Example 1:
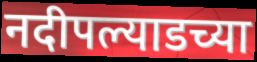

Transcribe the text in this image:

नदीपल्याडच्या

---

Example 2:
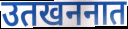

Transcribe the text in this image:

उतखननात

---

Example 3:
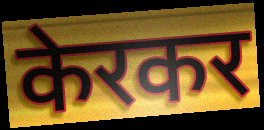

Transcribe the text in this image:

केरकर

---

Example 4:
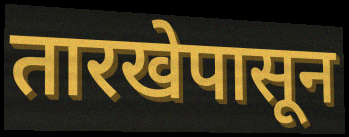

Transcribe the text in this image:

तारखेपासून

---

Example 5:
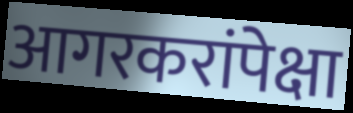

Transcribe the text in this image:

आगरकरांपेक्षा